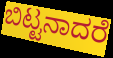
ಬಿಟ್ಟನಾದರೆ